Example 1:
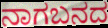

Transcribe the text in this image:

ನಾಗಬನದ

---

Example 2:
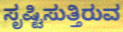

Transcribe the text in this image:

ಸೃಷ್ಟಿಸುತ್ತಿರುವ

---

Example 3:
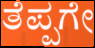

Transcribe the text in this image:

ತೆಪ್ಪಗೇ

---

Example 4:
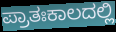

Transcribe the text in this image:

ಪ್ರಾತಃಕಾಲದಲ್ಲಿ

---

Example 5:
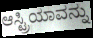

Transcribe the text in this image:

ಆಸ್ಟ್ರಿಯಾವನ್ನು